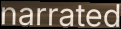
narrated